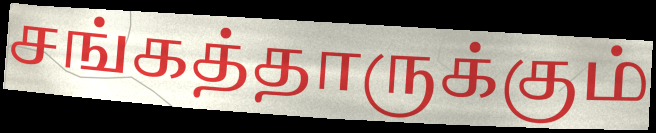
சங்கத்தாருக்கும்